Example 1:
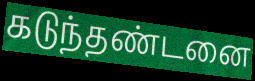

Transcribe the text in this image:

கடுந்தண்டனை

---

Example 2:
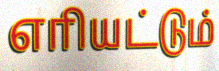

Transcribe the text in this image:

எரியட்டும்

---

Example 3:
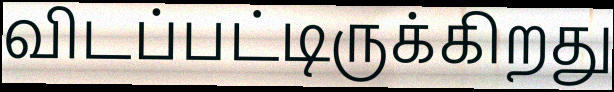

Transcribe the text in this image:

விடப்பட்டிருக்கிறது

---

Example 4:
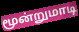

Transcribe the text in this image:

மூன்றுமாடி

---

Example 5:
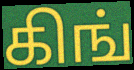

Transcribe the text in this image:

கிங்